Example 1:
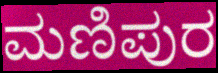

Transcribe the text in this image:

ಮಣಿಪುರ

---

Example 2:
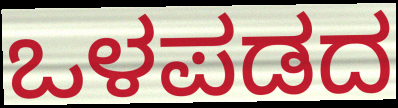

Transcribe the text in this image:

ಒಳಪಡದ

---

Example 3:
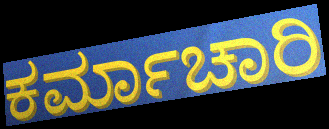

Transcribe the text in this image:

ಕರ್ಮಾಚಾರಿ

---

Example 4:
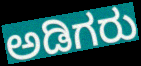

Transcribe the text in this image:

ಅಡಿಗರು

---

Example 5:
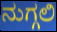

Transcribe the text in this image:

ನುಗ್ಗಲಿ